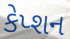
કેપ્શન